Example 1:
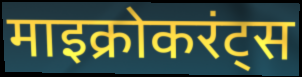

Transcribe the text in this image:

माइक्रोकरंट्स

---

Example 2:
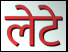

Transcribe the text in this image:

लेटे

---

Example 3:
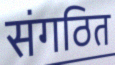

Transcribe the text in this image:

संगठित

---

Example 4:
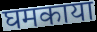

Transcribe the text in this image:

घमकाया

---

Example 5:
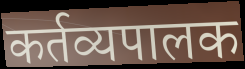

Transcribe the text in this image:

कर्तव्यपालक